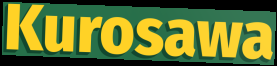
Kurosawa